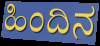
ಹಿಂದಿನ